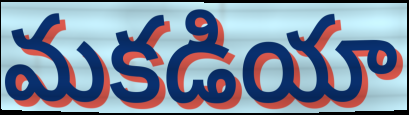
మకడియా